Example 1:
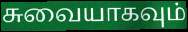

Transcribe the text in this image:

சுவையாகவும்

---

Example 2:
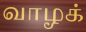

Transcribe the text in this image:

வாழக்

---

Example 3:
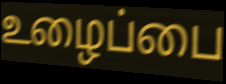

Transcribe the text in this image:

உழைப்பை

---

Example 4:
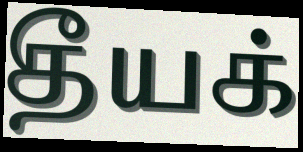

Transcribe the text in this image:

தீயக்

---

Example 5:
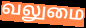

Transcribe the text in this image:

வலுமை